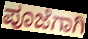
ಪೂಜೆಗಾಗಿ